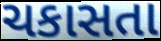
ચકાસતા